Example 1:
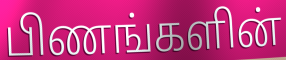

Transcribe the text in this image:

பிணங்களின்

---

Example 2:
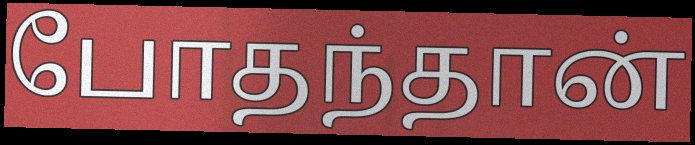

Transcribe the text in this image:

போதந்தான்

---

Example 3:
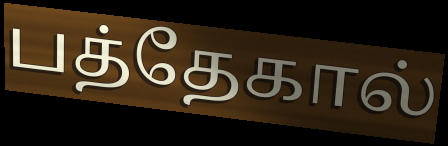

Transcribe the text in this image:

பத்தேகால்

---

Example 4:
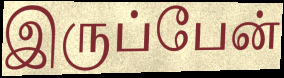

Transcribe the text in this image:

இருப்பேன்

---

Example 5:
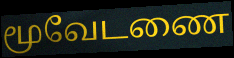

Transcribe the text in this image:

மூவேடணை